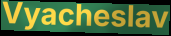
Vyacheslav